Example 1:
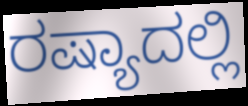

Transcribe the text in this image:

ರಷ್ಯಾದಲ್ಲಿ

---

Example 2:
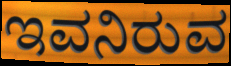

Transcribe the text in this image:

ಇವನಿರುವ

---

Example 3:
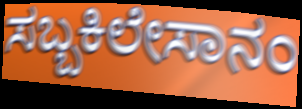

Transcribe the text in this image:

ಸಬ್ಬಕಿಲೇಸಾನಂ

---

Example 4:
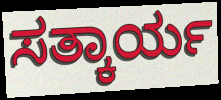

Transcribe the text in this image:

ಸತ್ಕಾರ್ಯ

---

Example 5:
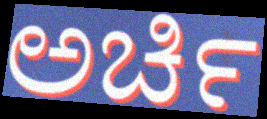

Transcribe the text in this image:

ಅರ್ಚಿ